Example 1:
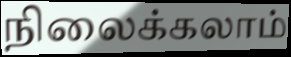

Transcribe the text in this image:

நிலைக்கலாம்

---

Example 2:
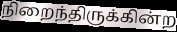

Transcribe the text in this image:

நிறைந்திருக்கின்ற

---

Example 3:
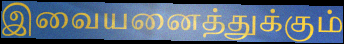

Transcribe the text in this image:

இவையனைத்துக்கும்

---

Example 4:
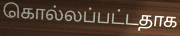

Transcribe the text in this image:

கொல்லப்பட்டதாக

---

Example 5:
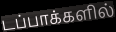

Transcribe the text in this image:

டப்பாக்களில்